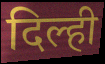
दिल्ही